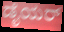
ಡೈಯರ್